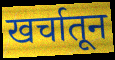
खर्चातून